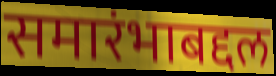
समारंभाबद्दल